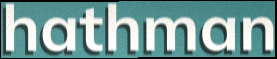
hathman